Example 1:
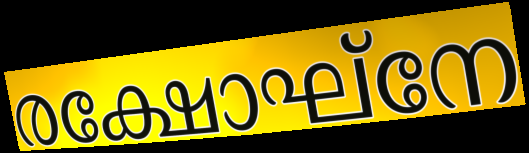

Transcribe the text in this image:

രക്ഷോഘ്നേ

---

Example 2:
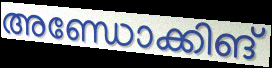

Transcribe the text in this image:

അണ്ഡോക്കിങ്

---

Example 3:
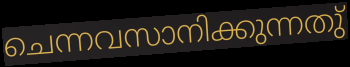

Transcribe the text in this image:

ചെന്നവസാനിക്കുന്നതു്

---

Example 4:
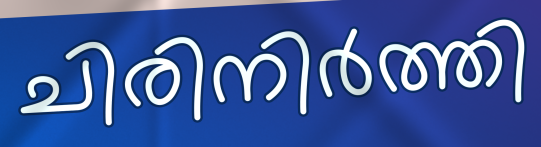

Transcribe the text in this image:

ചിരിനിർത്തി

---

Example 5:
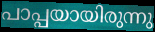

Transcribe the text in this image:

പാപ്പയായിരുന്നു